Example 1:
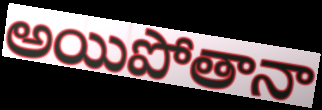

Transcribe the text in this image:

అయిపోతానా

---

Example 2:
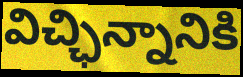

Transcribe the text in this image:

విచ్ఛిన్నానికి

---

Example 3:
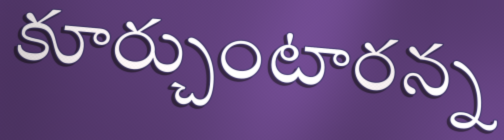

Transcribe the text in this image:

కూర్చుంటారన్న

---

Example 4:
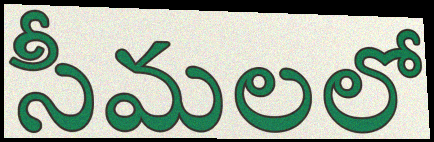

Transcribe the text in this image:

సీమలలో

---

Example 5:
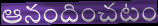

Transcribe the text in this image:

ఆనందించటం